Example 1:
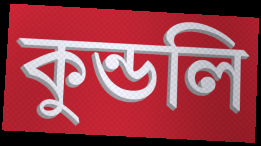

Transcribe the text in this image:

কুন্ডলি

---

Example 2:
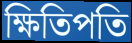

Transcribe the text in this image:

ক্ষিতিপতি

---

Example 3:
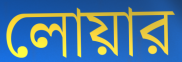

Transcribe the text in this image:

লোয়ার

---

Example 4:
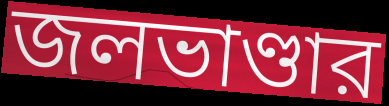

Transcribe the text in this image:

জলভাণ্ডার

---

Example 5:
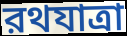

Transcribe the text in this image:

রথযাত্রা